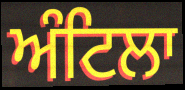
ਅੰਟਿਲਾ